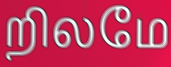
றிலமே